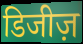
डिजीज़